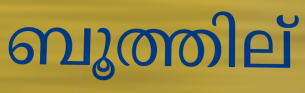
ബൂത്തില്